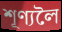
শূণ্যলৈ